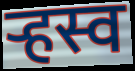
ऱ्हस्व